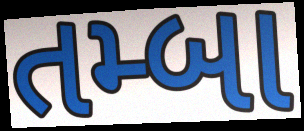
તમ્બા